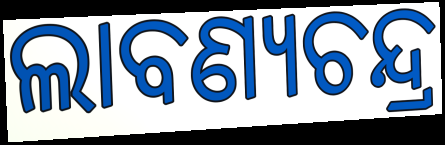
ଲାବଣ୍ୟଚନ୍ଦ୍ର